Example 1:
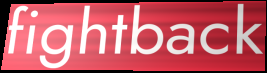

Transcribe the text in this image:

fightback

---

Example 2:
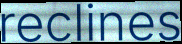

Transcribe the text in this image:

reclines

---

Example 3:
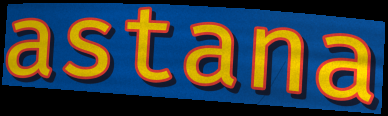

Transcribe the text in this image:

astana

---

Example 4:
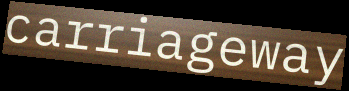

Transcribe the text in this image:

carriageway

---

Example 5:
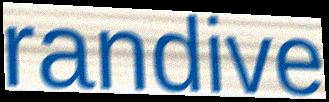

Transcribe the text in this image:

randive